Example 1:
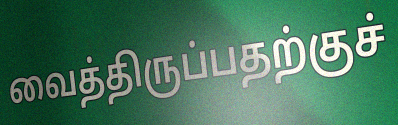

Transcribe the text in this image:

வைத்திருப்பதற்குச்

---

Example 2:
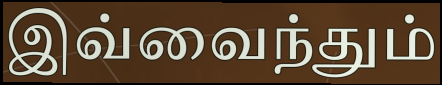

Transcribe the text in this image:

இவ்வைந்தும்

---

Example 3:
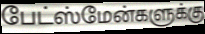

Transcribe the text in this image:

பேட்ஸ்மேன்களுக்கு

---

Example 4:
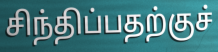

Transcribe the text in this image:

சிந்திப்பதற்குச்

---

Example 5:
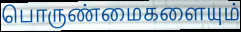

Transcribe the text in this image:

பொருண்மைகளையும்